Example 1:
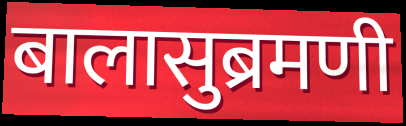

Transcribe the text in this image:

बालासुब्रमणी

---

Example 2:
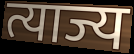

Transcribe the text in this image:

त्याज्य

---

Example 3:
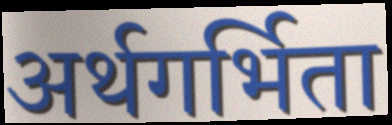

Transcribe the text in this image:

अर्थगर्भिता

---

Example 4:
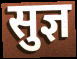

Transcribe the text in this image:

सुज्ञ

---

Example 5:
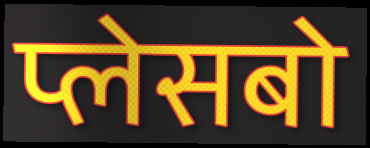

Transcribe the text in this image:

प्लेसबो